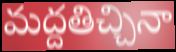
మద్దతిచ్చినా